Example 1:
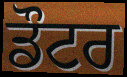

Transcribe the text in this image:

ਡੌਟਰ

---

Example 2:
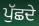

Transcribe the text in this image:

ਪੁੱਛਦੇ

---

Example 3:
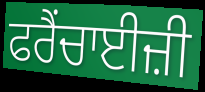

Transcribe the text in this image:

ਫਰੈਂਚਾਈਜ਼ੀ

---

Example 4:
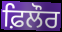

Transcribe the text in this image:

ਫ਼ਿਲੌਰ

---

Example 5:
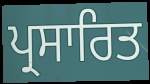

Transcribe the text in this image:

ਪ੍ਰਸਾਰਿਤ